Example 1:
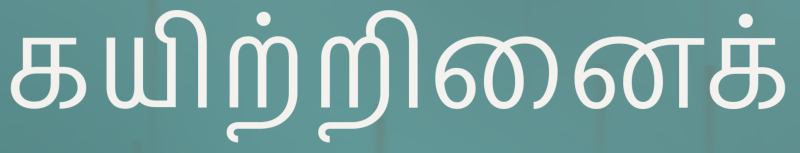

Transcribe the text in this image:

கயிற்றினைக்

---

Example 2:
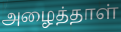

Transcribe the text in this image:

அழைத்தாள்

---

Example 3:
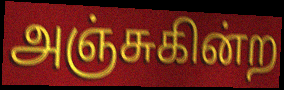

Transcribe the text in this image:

அஞ்சுகின்ற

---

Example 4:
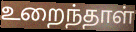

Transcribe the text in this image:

உறைந்தாள்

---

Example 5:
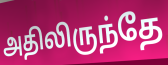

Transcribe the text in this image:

அதிலிருந்தே